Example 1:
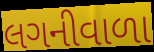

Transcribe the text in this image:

લગનીવાળા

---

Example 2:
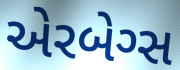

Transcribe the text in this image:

એરબેગ્સ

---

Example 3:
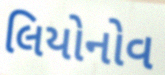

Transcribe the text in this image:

લિયોનોવ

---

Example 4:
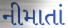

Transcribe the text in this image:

નીમાતાં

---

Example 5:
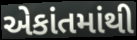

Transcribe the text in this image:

એકાંતમાંથી